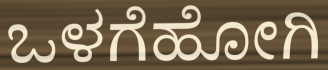
ಒಳಗೆಹೋಗಿ